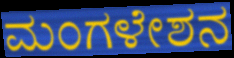
ಮಂಗಳೇಶನ